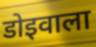
डोइवाला